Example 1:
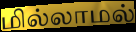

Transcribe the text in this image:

மில்லாமல்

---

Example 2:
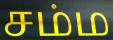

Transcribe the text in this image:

சம்ம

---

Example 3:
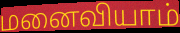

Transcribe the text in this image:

மனைவியாம்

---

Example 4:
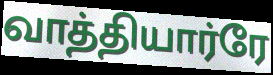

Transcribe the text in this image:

வாத்தியார்ரே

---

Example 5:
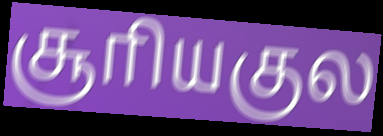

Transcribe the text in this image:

சூரியகுல